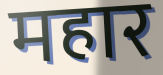
महार